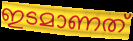
ഇടമാണത്